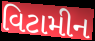
વિટામીન